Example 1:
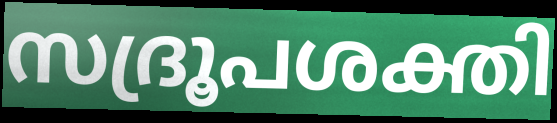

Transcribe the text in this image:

സദ്രൂപശക്തി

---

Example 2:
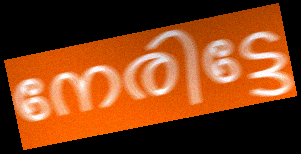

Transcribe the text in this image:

നേരിട്ടേ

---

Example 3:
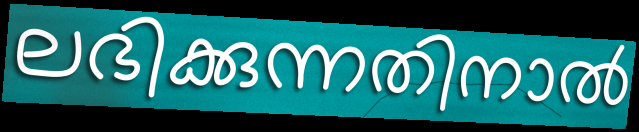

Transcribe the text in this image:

ലഭിക്കുന്നതിനാൽ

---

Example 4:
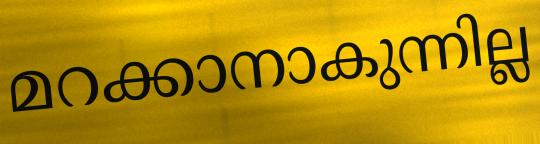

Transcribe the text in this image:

മറക്കാനാകുന്നില്ല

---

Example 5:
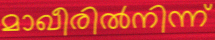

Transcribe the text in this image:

മാഖീരിൽനിന്ന്